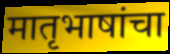
मातृभाषांचा